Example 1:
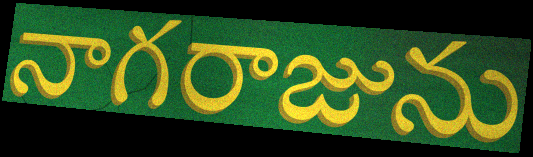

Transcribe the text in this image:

నాగరాజును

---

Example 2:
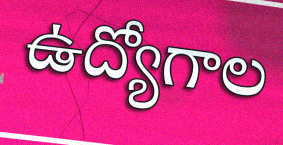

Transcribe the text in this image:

ఉద్యోగాల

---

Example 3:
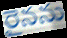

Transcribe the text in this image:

రైనను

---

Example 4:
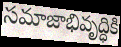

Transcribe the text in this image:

సమాజాభివృద్ధికి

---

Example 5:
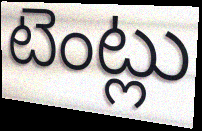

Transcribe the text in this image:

టెంట్లు